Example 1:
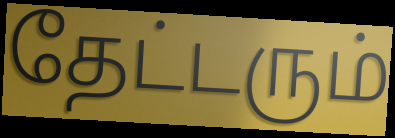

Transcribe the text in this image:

தேட்டரும்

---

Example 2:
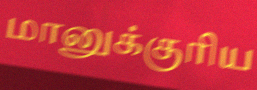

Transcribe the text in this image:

மானுக்குரிய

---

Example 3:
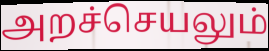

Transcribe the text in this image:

அறச்செயலும்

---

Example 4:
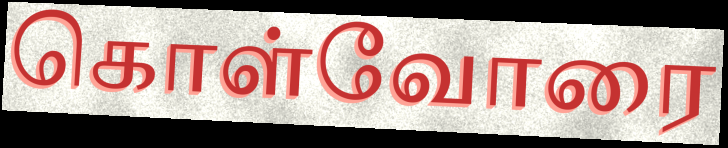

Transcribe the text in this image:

கொள்வோரை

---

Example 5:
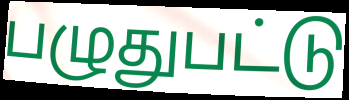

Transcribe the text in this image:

பழுதுபட்டு